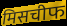
मिसचीफ